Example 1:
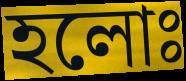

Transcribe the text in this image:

হলোঃ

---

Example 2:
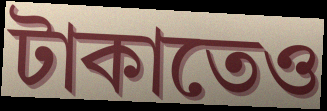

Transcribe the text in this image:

টাকাতেও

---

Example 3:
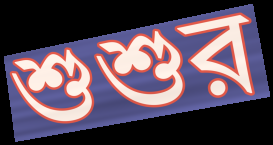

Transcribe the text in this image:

শুশুর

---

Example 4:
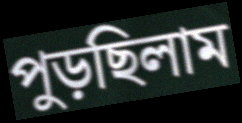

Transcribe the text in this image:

পুড়ছিলাম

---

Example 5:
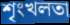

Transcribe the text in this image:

শৃংখলতা